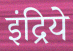
इंद्रिये